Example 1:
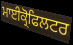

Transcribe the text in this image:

ਮਾਈਕ੍ਰੋਫਿਲਟਰ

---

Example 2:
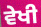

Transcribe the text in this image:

ਵੇਖੀ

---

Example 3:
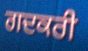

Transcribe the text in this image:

ਗਦਕਰੀ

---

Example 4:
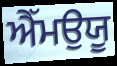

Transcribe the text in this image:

ਐੱਮਉਯੂ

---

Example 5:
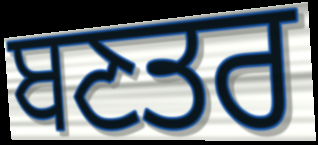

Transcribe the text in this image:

ਬਣਤਰ